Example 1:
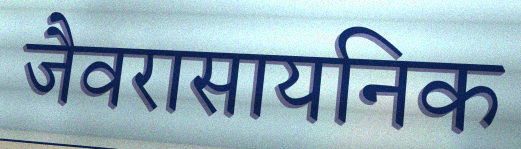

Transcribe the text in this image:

जैवरासायनिक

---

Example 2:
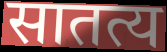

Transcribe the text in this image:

सातत्य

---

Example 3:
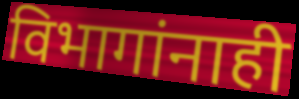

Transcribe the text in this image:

विभागांनाही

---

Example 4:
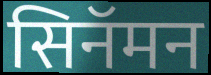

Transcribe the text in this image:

सिनॅमन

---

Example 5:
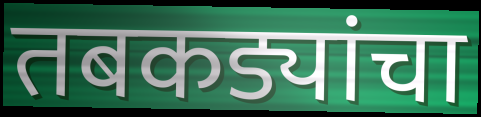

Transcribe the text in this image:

तबकड्यांचा